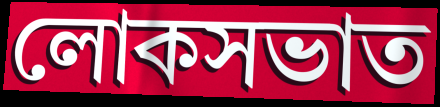
লোকসভাত